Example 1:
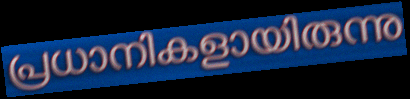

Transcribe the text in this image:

പ്രധാനികളായിരുന്നു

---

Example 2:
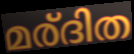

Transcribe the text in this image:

മര്ദിത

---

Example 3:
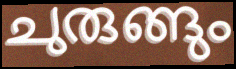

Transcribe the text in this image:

ചുരുങ്ങും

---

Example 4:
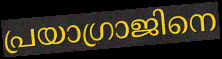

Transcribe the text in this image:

പ്രയാഗ്രാജിനെ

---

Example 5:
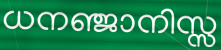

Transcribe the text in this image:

ധനഞ്ജാനിസ്സ